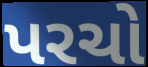
પરચો